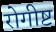
रोगीष्ट